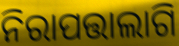
ନିରାପତ୍ତାଲାଗି